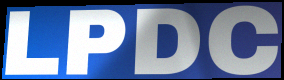
LPDC